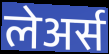
लेअर्स